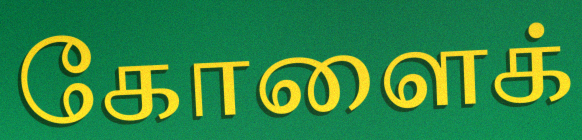
கோளைக்